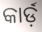
କାର୍ଡ଼